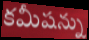
కమీషన్ను